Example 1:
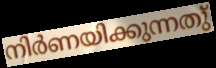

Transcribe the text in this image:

നിർണയിക്കുന്നതു്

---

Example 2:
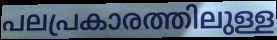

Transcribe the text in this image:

പലപ്രകാരത്തിലുള്ള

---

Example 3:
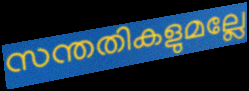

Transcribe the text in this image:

സന്തതികളുമല്ലേ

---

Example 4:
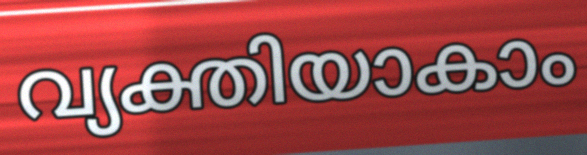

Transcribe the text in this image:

വ്യക്തിയാകാം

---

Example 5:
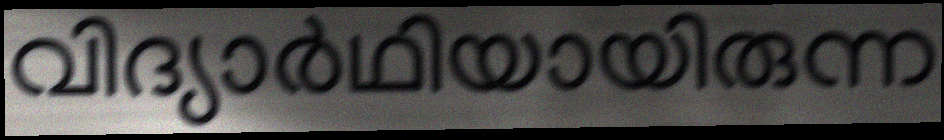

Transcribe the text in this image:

വിദ്യാർഥിയായിരുന്ന